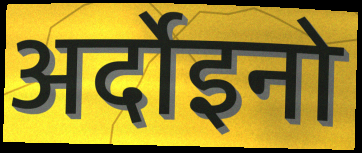
अर्दोइनो